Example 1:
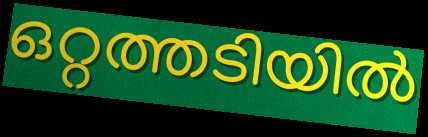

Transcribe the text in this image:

ഒറ്റത്തടിയിൽ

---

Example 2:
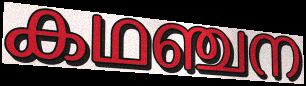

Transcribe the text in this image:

കഥഞ്ചന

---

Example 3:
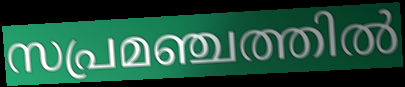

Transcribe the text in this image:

സപ്രമഞ്ചത്തിൽ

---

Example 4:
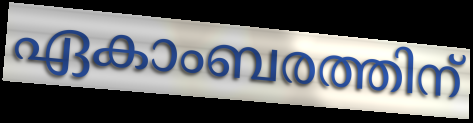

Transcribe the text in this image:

ഏകാംബരത്തിന്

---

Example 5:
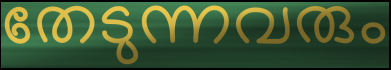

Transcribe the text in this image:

തേടുന്നവരും